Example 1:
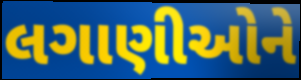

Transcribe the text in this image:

લગાણીઓને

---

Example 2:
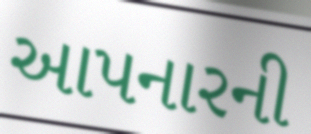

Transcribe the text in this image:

આપનારની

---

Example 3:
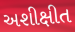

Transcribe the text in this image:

અશીક્ષીત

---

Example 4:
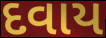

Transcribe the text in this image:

દવાય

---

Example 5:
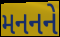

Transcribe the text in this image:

મનનને